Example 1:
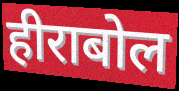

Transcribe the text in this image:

हीराबोल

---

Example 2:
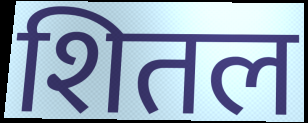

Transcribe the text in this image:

शितल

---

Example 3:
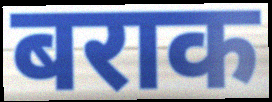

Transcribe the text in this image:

बराक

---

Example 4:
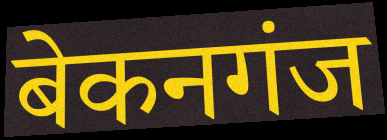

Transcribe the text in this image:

बेकनगंज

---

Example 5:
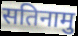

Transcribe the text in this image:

सतिनामु